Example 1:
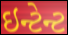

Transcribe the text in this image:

ઇન્ટેન્ટ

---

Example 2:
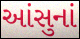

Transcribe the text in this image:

આંસુનાં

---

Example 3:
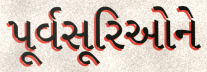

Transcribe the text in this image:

પૂર્વસૂરિઓને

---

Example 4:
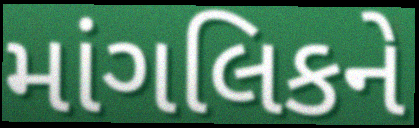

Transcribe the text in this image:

માંગલિકને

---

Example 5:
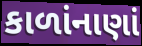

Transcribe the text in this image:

કાળાંનાણાં